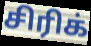
சிரிக்